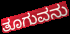
ತೂಗುವನು